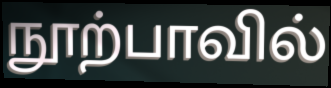
நூற்பாவில்